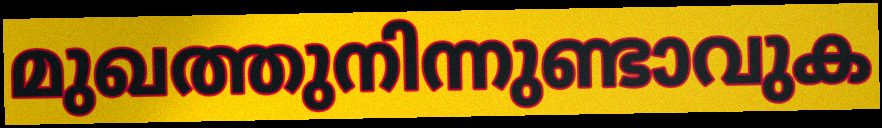
മുഖത്തുനിന്നുണ്ടാവുക